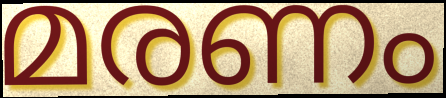
മരണം